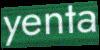
yenta